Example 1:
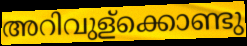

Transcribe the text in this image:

അറിവുള്ക്കൊണ്ടു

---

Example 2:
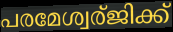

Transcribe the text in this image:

പരമേശ്വര്ജിക്ക്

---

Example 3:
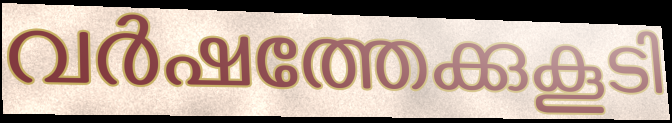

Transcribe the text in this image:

വർഷത്തേക്കുകൂടി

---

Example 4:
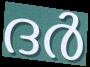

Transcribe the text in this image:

ദർ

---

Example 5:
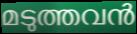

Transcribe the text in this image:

മടുത്തവൻ